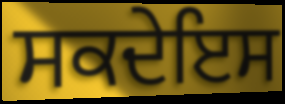
ਸਕਦੇਇਸ